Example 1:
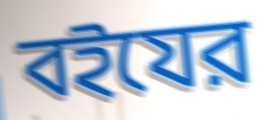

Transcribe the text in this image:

বইযের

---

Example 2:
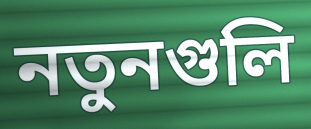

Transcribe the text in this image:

নতুনগুলি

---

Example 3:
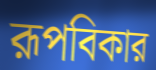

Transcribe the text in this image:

রূপবিকার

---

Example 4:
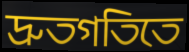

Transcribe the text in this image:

দ্রুতগতিতে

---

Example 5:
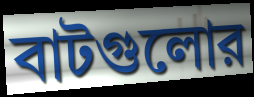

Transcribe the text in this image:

বাটগুলোর